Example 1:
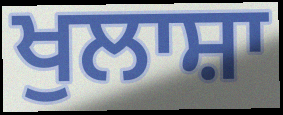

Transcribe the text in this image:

ਖੁਲਾਸ਼ਾ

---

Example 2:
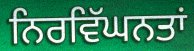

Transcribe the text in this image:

ਨਿਰਵਿੱਘਨਤਾਂ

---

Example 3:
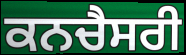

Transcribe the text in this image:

ਕਨਚੈਸਰੀ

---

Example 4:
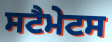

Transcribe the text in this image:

ਸਟੈਮੇਟਸ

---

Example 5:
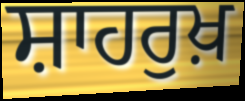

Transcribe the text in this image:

ਸ਼ਾਹਰੁਖ਼